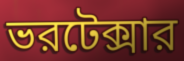
ভরটেক্সার